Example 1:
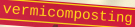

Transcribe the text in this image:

vermicomposting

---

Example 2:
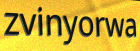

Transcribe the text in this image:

zvinyorwa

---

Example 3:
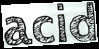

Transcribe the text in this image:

acid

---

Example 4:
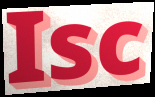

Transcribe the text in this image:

Isc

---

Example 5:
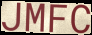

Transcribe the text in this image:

JMFC